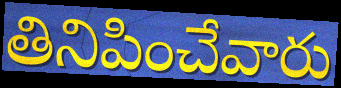
తినిపించేవారు